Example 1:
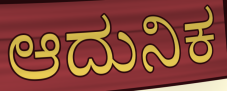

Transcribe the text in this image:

ಆದುನಿಕ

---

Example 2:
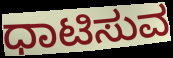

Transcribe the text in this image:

ಧಾಟಿಸುವ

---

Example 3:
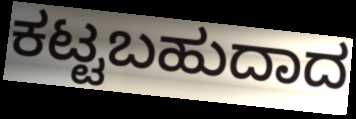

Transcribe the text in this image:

ಕಟ್ಟಬಹುದಾದ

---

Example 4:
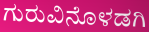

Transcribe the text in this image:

ಗುರುವಿನೊಳಡಗಿ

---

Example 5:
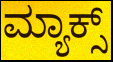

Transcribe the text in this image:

ಮ್ಯಾಕ್ಸ್